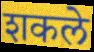
शकले